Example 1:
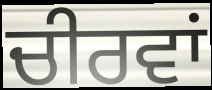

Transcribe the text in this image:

ਚੀਰਵਾਂ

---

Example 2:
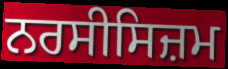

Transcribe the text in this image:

ਨਰਸੀਸਿਜ਼ਮ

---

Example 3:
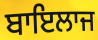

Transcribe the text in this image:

ਬਾਇਲਾਜ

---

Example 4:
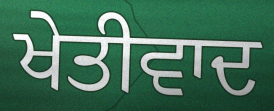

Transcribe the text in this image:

ਖੇਤੀਵਾਦ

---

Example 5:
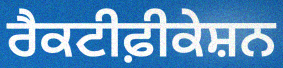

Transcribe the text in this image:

ਰੈਕਟੀਫ਼ੀਕੇਸ਼ਨ